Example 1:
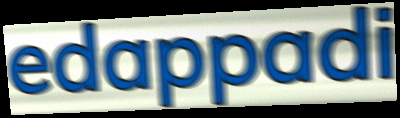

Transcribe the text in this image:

edappadi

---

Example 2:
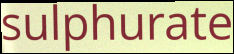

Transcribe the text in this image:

sulphurate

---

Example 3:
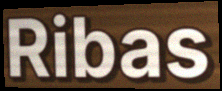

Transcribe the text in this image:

Ribas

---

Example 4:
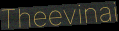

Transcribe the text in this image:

Theevinai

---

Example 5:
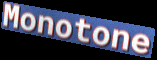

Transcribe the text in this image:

Monotone